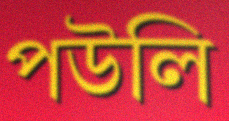
পউলি